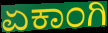
ಏಕಾಂಗಿ